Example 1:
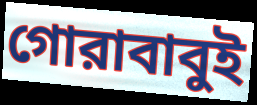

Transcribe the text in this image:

গোরাবাবুই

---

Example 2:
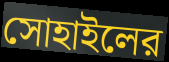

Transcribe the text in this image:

সোহাইলের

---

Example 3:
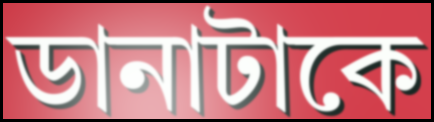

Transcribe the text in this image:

ডানাটাকে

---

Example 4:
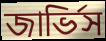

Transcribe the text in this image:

জার্ভিস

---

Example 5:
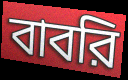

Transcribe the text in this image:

বাবরি